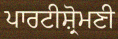
ਪਾਰਟੀਸ਼੍ਰੋਮਣੀ